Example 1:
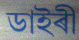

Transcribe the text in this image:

ডাইৰী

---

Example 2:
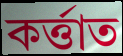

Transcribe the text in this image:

কৰ্ত্তাত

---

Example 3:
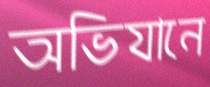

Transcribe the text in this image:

অভিযানে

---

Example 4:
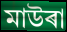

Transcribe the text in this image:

মাউৰা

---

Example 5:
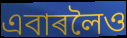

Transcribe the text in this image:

এবাৰলৈও